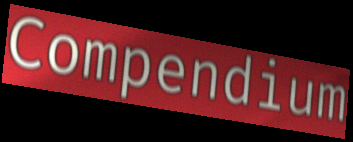
Compendium